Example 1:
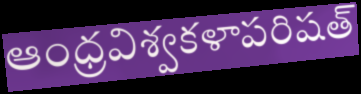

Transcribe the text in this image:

ఆంధ్రవిశ్వకళాపరిషత్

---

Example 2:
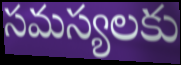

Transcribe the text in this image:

సమస్యలకు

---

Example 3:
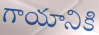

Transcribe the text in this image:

గాయానికి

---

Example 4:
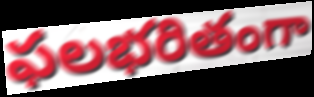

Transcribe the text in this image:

ఫలభరితంగా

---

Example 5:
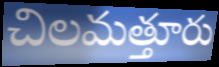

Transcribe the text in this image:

చిలమత్తూరు